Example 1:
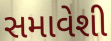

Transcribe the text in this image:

સમાવેશી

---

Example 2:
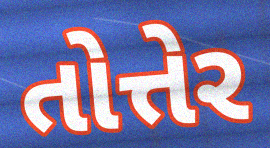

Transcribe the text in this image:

તોત્તેર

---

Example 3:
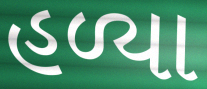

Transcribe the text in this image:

હળ્યા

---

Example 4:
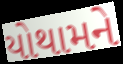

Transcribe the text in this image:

યોથામને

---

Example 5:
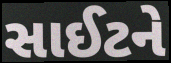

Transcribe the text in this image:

સાઈટને